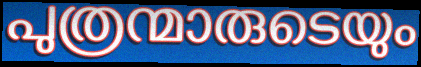
പുത്രന്മാരുടെയും